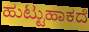
ಹುಟ್ಟುಹಾಕದೆ